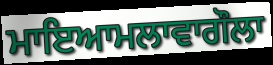
ਮਾਇਆਮਲਾਵਾਗੌਲਾ